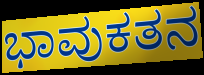
ಭಾವುಕತನ